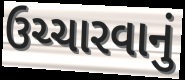
ઉચ્ચારવાનું